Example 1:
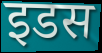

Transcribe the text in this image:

इडस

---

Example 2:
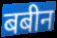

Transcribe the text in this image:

बबीन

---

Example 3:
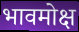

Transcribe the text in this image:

भावमोक्ष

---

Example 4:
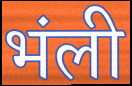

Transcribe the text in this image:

भंली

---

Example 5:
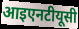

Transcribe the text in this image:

आइएनटीयूसी